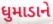
ધુમાડાને